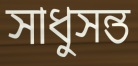
সাধুসন্ত